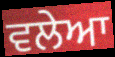
ਵਲੇਆ